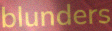
blunders